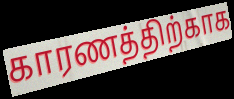
காரணத்திற்காக